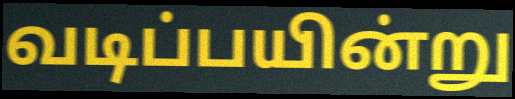
வடிப்பயின்று